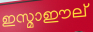
ഇസ്മാഈല്